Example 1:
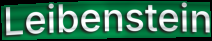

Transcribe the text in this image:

Leibenstein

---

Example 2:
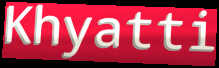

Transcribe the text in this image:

Khyatti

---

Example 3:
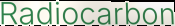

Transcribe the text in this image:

Radiocarbon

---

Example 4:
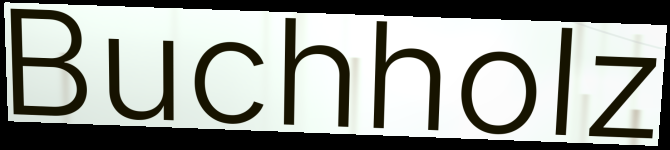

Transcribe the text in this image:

Buchholz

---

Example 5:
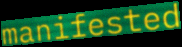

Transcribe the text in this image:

manifested